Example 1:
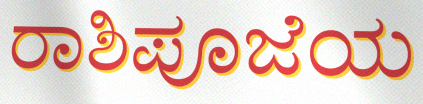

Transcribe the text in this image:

ರಾಶಿಪೂಜೆಯ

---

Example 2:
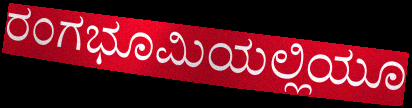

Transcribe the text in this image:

ರಂಗಭೂಮಿಯಲ್ಲಿಯೂ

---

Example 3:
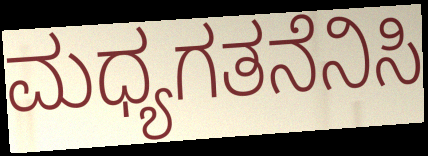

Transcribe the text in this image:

ಮಧ್ಯಗತನೆನಿಸಿ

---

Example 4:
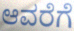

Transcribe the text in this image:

ಆವರೆಗೆ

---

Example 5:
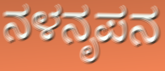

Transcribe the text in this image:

ನಳನೃಪನ